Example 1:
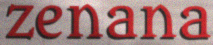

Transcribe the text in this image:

zenana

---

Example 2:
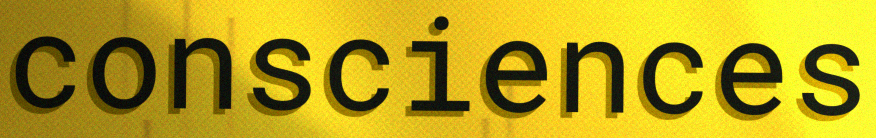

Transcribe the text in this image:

consciences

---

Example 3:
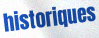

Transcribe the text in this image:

historiques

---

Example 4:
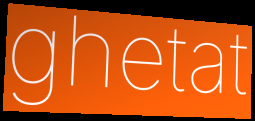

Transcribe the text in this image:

ghetat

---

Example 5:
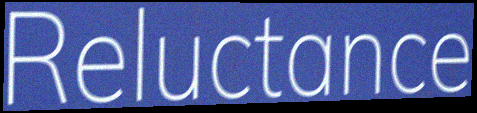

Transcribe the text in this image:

Reluctance